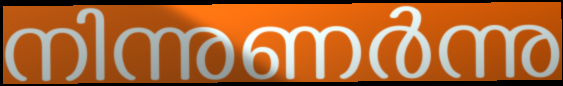
നിന്നുണർന്നു